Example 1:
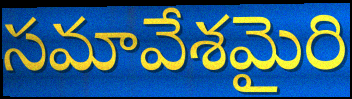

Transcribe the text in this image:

సమావేశమైరి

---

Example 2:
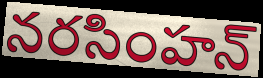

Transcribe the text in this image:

నరసింహన్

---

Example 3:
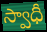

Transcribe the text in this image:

స్వాధీ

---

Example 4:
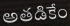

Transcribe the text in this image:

అతడికేం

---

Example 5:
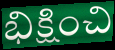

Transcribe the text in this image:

భిక్షించి